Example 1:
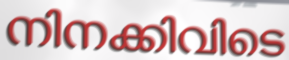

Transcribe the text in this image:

നിനക്കിവിടെ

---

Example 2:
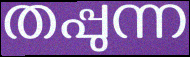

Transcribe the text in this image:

തപ്പുന്ന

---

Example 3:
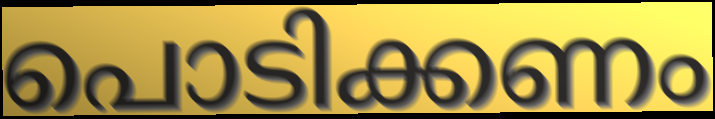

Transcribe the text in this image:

പൊടിക്കണം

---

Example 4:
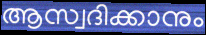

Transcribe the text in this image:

ആസ്വദിക്കാനും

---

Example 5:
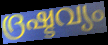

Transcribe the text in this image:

ദ്രഷ്ടവ്യം